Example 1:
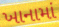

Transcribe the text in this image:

ખાનામાં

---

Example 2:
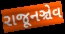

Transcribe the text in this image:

રાજૂનઞ્ચેવ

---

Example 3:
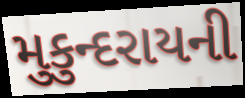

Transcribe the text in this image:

મુકુન્દરાયની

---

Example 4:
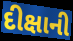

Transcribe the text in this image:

દીક્ષાની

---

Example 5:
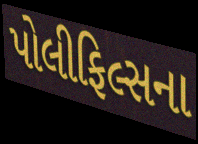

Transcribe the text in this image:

પોલીફિલ્સના